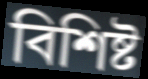
বিশিষ্ট